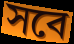
সবে